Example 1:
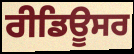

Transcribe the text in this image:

ਰੀਡਿਊਸਰ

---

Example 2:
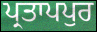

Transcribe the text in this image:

ਪ੍ਰਤਾਪਪੁਰ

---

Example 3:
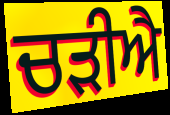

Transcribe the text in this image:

ਚੜੀਐ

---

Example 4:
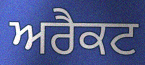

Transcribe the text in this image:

ਅਰੈਕਟ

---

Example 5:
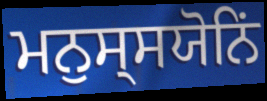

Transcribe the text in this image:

ਮਨੁਸ੍ਸਯੋਨਿਂ